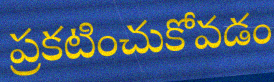
ప్రకటించుకోవడం